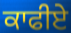
ਕਾਫੀਏ